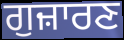
ਗੁਜ਼ਾਰਣ